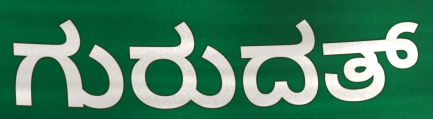
ಗುರುದತ್